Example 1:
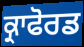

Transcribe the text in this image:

ਕ੍ਰਾਫੋਰਡ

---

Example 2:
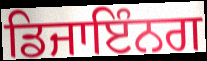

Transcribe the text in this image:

ਡਿਜਾਇੰਨਗ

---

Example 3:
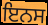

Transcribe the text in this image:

ਇਨਸ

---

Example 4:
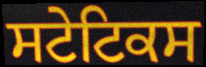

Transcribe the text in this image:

ਸਟੇਟਿਕਸ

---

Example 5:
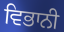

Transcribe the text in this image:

ਵਿਭਾਨੀ